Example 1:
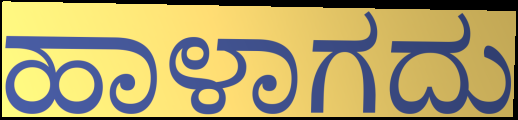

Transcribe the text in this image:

ಹಾಳಾಗದು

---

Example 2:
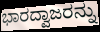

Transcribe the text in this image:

ಭಾರದ್ವಾಜರನ್ನು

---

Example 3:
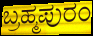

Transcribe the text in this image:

ಬ್ರಹ್ಮಪುರಂ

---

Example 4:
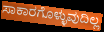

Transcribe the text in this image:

ಸಾಕಾರಗೊಳ್ಳುವುದಿಲ್ಲ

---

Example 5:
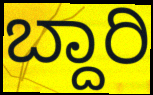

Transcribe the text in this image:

ಬ್ದಾರಿ